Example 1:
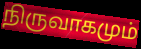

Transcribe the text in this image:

நிருவாகமும்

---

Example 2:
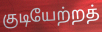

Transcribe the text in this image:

குடியேற்றத்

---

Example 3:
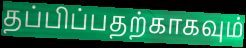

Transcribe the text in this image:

தப்பிப்பதற்காகவும்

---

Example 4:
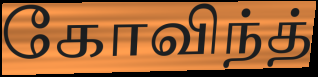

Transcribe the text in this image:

கோவிந்த்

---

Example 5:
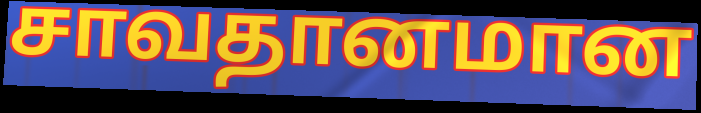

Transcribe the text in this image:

சாவதானமான